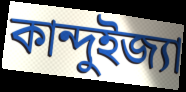
কান্দুইজ্যা